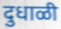
दुधाळी